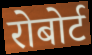
रोबोर्ट